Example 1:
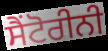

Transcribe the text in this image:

ਸੈਂਟੋਰੀਨੀ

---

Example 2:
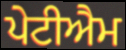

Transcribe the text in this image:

ਪੇਟੀਐਮ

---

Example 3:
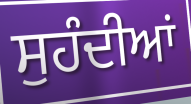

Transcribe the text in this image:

ਸੁਹੰਦੀਆਂ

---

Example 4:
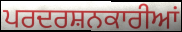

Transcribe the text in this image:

ਪਰਦਰਸ਼ਨਕਾਰੀਆਂ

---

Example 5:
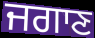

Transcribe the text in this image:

ਜਗਾਣ